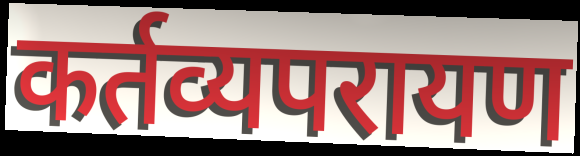
कर्तव्यपरायण